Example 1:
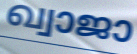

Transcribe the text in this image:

ഖ്വാജാ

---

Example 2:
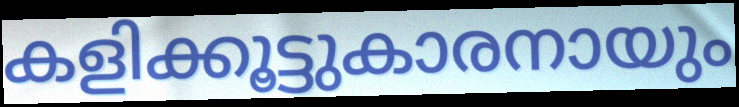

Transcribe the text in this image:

കളിക്കൂട്ടുകാരനായും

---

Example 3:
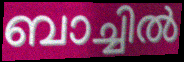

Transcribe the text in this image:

ബാച്ചിൽ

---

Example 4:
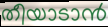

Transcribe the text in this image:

തീയാടാൻ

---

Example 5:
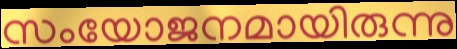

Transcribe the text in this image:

സംയോജനമായിരുന്നു